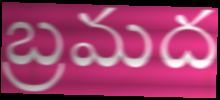
బ్రమద